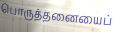
பொருத்தனையைப்